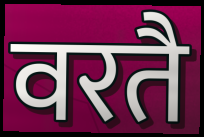
वरतै